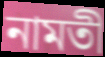
নামতী